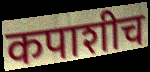
कपाशीच